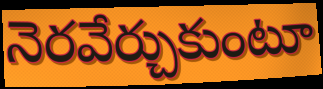
నెరవేర్చుకుంటూ